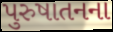
પુરુષાતનના